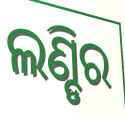
ଲଣ୍ଡିର